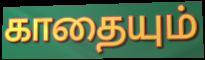
காதையும்